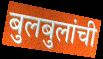
बुलबुलांची